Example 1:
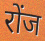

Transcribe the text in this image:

रोंज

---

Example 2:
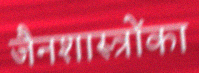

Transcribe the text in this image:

जैनशास्त्रोंका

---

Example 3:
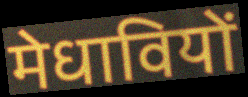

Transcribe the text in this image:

मेधावियों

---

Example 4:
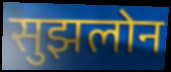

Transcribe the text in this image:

सुझलोन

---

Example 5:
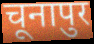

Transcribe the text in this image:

चूनापुर